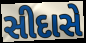
સીદાસે